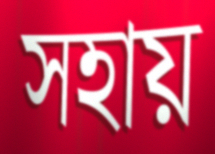
সহায়